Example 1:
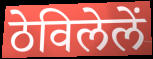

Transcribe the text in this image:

ठेविलेलें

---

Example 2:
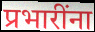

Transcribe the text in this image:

प्रभारींना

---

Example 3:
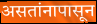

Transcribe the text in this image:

असतांनापासून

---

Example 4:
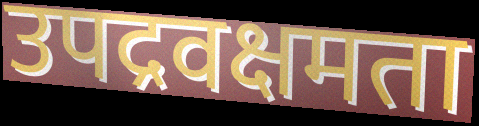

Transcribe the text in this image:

उपद्रवक्षमता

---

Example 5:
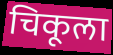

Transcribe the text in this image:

चिकूला